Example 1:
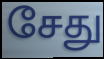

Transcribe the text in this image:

சேது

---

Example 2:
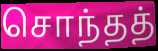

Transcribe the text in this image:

சொந்தத்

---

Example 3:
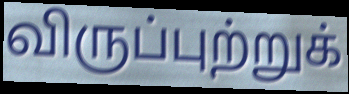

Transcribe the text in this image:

விருப்புற்றுக்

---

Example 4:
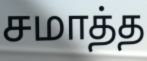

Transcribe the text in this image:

சமாத்த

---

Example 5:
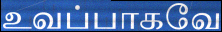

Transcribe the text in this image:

உவப்பாகவே